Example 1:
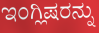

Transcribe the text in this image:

ಇಂಗ್ಲಿಷರನ್ನು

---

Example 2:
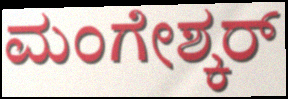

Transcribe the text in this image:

ಮಂಗೇಶ್ಕರ್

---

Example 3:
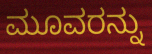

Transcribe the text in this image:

ಮೂವರನ್ನು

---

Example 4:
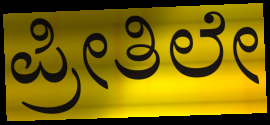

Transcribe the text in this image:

ಪ್ರೀತಿಲೇ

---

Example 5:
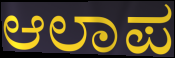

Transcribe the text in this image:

ಆಲಾಪ